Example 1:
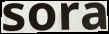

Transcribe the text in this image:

sora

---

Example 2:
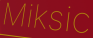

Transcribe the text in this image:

Miksic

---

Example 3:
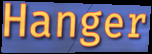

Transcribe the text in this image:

Hanger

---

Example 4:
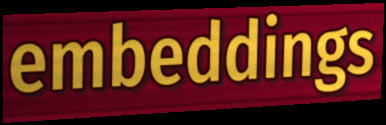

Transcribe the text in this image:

embeddings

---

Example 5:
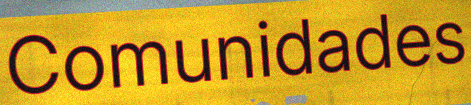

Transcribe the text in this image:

Comunidades